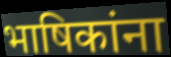
भाषिकांना